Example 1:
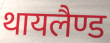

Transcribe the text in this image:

थायलैण्ड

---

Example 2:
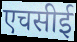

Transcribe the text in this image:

एचसीई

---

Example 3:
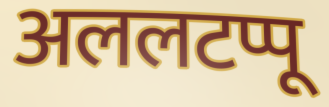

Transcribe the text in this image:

अललटप्पू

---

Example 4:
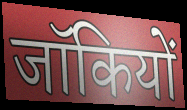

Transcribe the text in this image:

जॉकियों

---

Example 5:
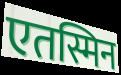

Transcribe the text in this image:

एतस्मिन